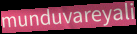
munduvareyali